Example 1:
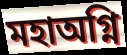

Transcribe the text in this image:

মহাঅগ্নি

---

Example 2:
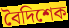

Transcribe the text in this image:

বৈদিশেক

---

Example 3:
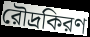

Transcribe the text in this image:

রৌদ্রকিরণ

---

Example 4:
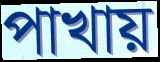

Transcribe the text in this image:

পাখায়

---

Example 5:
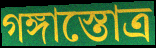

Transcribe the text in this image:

গঙ্গাস্তোত্র